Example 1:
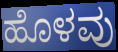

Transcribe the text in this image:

ಹೊಳವು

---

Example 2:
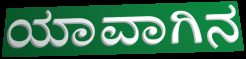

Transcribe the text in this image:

ಯಾವಾಗಿನ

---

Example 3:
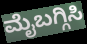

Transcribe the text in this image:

ಮೈಬಗ್ಗಿಸಿ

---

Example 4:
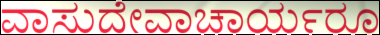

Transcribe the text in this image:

ವಾಸುದೇವಾಚಾರ್ಯರೂ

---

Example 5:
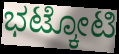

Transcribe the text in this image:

ಭಟ್ಕೋಟಿ